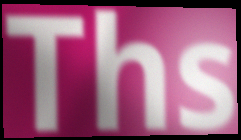
Ths